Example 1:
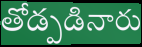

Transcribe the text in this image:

తోడ్పడినారు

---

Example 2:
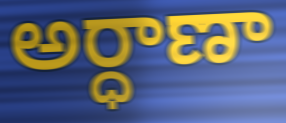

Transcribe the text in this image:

అర్ధాణా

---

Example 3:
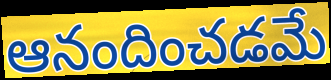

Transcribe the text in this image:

ఆనందించడమే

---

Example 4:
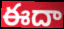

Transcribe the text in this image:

ఈదా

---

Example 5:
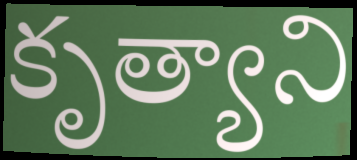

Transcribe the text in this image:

కృత్యాని